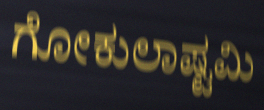
ಗೋಕುಲಾಷ್ಟಮಿ